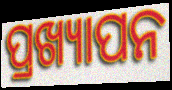
ପ୍ରଖ୍ୟାପନ